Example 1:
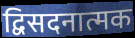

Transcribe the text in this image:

द्विसदनात्मक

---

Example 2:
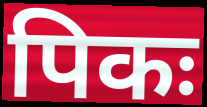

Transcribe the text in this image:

पिकः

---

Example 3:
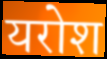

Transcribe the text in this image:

यरोश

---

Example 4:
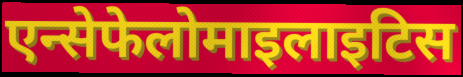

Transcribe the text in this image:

एन्सेफेलोमाइलाइटिस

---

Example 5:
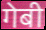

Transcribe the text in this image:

गेबी